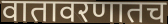
वातावरणातच